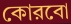
কোরবো